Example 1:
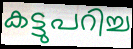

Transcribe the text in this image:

കട്ടുപറിച്ച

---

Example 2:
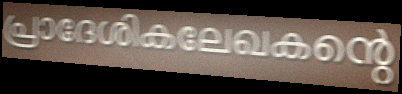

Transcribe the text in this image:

പ്രാദേശികലേഖകന്റെ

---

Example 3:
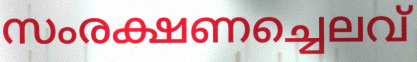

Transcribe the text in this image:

സംരക്ഷണച്ചെലവ്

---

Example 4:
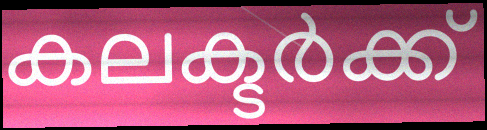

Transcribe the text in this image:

കലക്ടർക്ക്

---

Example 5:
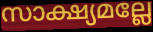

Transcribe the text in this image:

സാക്ഷ്യമല്ലേ